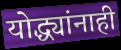
योद्ध्यांनाही